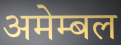
अमेम्बल